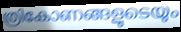
ത്രികോണങ്ങളുടെയും